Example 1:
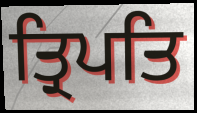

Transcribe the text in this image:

ਤ੍ਰਿਪਤਿ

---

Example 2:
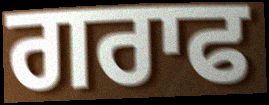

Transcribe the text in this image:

ਗਰਾਫ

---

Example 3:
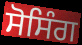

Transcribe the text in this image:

ਸੋਸਿੰਗ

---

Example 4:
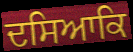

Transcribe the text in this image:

ਦਸਿਆਕਿ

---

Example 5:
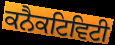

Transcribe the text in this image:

ਕਨੈਕਟਿਵਿਟੀ